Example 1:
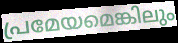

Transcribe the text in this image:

പ്രമേയമെങ്കിലും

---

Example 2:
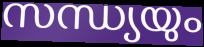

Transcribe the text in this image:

സന്ധ്യയും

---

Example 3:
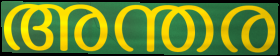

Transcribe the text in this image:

അന്തര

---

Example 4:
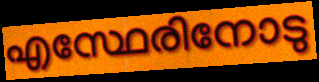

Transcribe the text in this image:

എസ്ഥേരിനോടു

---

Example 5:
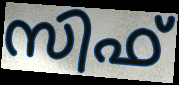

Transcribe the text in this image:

സിഫ്